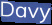
Davy